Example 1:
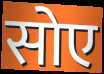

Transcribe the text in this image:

सोए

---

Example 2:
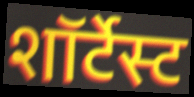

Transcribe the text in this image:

शॉर्टेस्ट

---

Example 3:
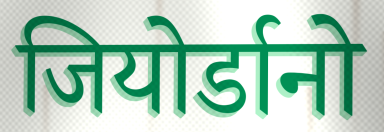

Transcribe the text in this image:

जियोर्डानो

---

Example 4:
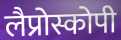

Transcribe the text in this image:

लैप्रोस्कोपी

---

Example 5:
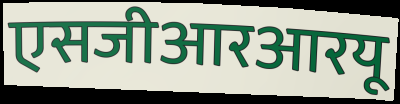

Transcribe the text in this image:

एसजीआरआरयू